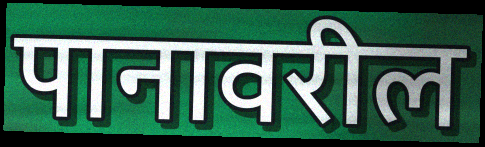
पानावरील